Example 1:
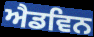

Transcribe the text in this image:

ਐਡਵਿਨ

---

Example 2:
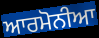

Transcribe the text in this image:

ਆਰਮੋਨੀਆ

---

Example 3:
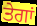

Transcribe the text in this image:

ਤੇਗਾਂ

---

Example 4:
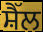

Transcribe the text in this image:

ਸ਼ੈੱਲ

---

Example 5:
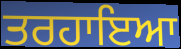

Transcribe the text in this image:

ਤਰਹਾਇਆ